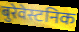
बुरेवेस्टनिक